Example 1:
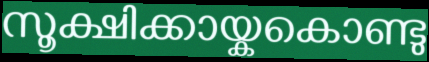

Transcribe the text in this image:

സൂക്ഷിക്കായ്കകൊണ്ടു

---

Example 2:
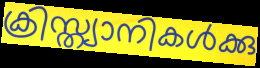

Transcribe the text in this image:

ക്രിസ്ത്യാനികൾക്കു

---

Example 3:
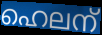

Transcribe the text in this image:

ഹെലന്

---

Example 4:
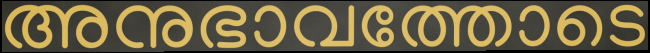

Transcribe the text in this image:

അനുഭാവത്തോടെ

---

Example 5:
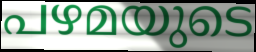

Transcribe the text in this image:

പഴമയുടെ